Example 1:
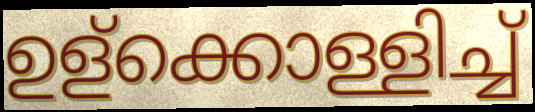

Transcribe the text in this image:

ഉള്ക്കൊള്ളിച്ച്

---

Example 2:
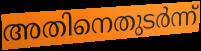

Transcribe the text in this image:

അതിനെതുടർന്ന്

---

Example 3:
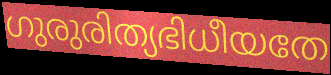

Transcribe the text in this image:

ഗുരുരിത്യഭിധീയതേ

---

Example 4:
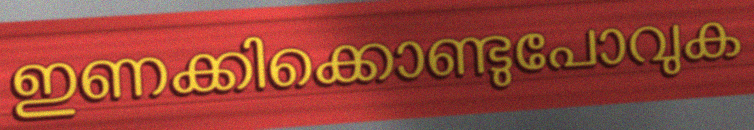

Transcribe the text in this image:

ഇണക്കിക്കൊണ്ടുപോവുക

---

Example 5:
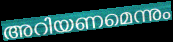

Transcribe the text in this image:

അറിയണമെന്നും